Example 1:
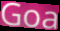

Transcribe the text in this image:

Goa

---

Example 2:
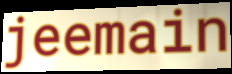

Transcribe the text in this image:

jeemain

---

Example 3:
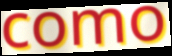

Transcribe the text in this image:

como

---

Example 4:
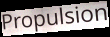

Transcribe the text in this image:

Propulsion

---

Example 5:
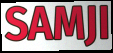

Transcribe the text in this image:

SAMJI